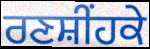
ਰਣਸ਼ੀਂਹਕੇ